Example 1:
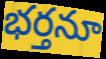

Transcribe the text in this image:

భర్తనూ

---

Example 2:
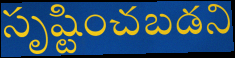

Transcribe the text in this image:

సృష్టించబడని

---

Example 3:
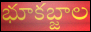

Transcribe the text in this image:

భూకబ్జాల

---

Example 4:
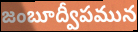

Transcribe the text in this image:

జంబూద్వీపమున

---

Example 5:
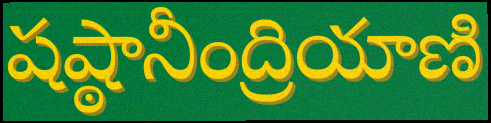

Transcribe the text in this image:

షష్ఠానీంద్రియాణి